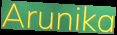
Arunika